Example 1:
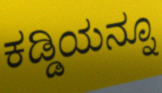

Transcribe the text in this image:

ಕಡ್ಡಿಯನ್ನೂ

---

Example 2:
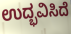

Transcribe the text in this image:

ಉದ್ಭವಿಸಿದೆ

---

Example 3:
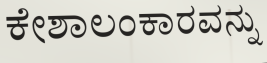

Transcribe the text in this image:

ಕೇಶಾಲಂಕಾರವನ್ನು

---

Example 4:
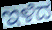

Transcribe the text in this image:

ಇಳಿದ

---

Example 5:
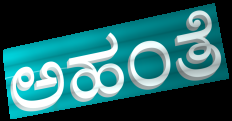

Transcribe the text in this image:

ಅಹಂತೆ